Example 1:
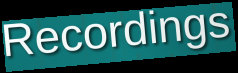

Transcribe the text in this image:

Recordings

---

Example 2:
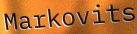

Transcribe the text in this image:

Markovits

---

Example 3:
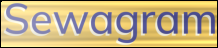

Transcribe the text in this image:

Sewagram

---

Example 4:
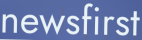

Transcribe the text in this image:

newsfirst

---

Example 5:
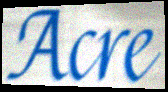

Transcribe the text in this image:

Acre